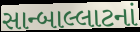
સાન્બાલ્લાટનાં